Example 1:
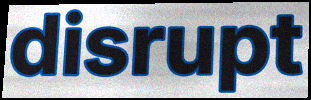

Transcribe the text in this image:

disrupt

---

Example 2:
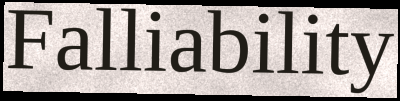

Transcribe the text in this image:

Falliability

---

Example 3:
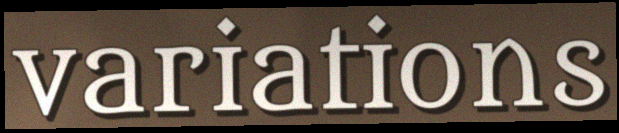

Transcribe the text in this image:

variations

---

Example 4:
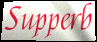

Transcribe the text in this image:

Supperb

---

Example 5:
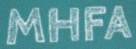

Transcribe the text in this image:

MHFA